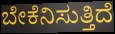
ಬೇಕೆನಿಸುತ್ತಿದೆ